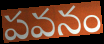
పవనం